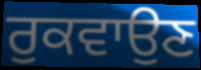
ਰੁਕਵਾਉਣ